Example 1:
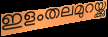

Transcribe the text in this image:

ഇളംതലമുറയ്ക്കു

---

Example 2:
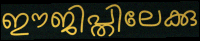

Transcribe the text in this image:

ഈജിപ്തിലേക്കു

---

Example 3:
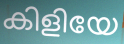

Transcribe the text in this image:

കിളിയേ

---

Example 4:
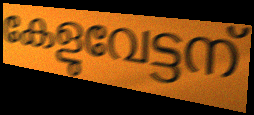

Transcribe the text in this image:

കേളുവേട്ടന്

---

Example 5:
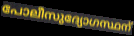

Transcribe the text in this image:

പോലീസുദ്യോഗസ്ഥന്